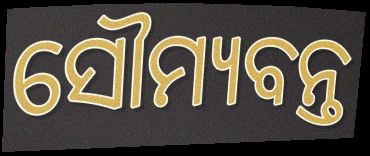
ସୌମ୍ୟବନ୍ତ